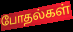
போதல்கள்